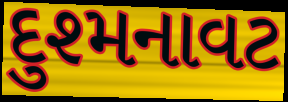
દુશ્મનાવટ